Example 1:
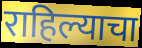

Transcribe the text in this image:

राहिल्याचा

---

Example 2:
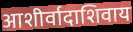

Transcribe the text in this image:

आशीर्वादाशिवाय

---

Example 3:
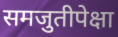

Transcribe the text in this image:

समजुतीपेक्षा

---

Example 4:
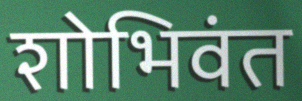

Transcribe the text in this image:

शोभिवंत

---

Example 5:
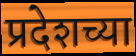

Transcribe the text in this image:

प्रदेशच्या